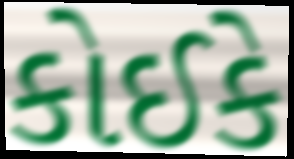
કોઈકે